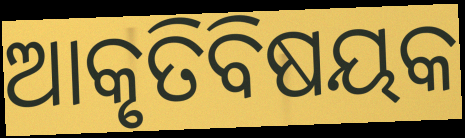
ଆକୃତିବିଷୟକ